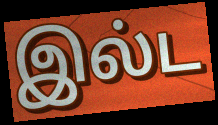
இல்ட